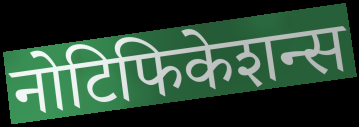
नोटिफिकेशन्स